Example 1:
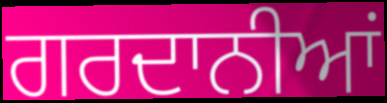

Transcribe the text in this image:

ਗਰਦਾਨੀਆਂ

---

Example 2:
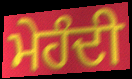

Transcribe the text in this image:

ਮੇਹੰਦੀ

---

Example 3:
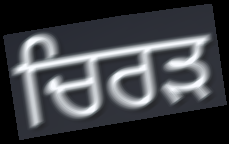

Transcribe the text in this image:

ਚਿਰੜ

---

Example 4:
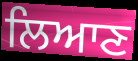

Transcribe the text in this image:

ਲਿਆਣ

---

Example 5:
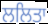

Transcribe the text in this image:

ਲਲਿਤਾ